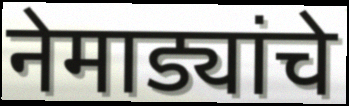
नेमाड्यांचे